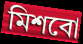
মিশবো